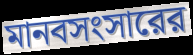
মানবসংসারের